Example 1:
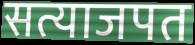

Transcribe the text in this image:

सत्याजपत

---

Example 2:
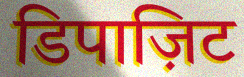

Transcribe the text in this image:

डिपाज़िट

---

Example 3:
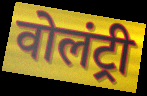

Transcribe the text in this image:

वोलंट्री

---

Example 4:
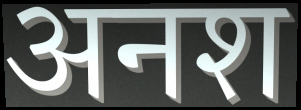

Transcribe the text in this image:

अनश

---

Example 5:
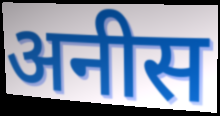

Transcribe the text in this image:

अनीस